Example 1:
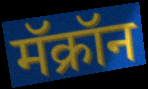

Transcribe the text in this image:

मॅक्रॉन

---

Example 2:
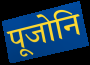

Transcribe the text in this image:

पूजोनि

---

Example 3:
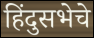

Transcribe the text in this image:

हिंदुसभेचे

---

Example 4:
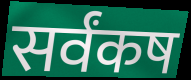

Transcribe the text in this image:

सर्वंकष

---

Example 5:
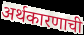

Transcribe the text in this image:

अर्थकारणाची